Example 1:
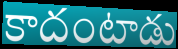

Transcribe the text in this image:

కాదంటాడు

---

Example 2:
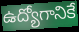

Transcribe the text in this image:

ఉద్యోగానికే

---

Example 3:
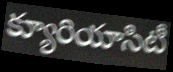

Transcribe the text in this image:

క్యూరియాసిటీ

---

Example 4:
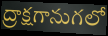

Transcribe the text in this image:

ద్రాక్షగానుగలో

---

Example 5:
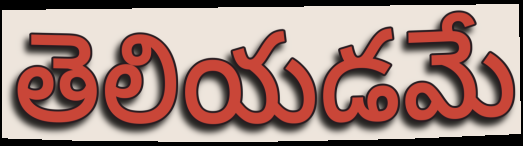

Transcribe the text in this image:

తెలియడమే